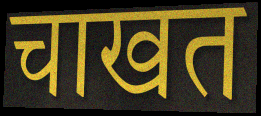
चाखत